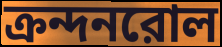
ক্রন্দনরোল